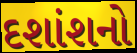
દશાંશનો